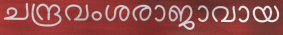
ചന്ദ്രവംശരാജാവായ